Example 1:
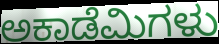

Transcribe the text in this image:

ಅಕಾಡೆಮಿಗಳು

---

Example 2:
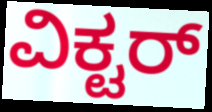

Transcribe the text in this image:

ವಿಕ್ಟರ್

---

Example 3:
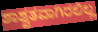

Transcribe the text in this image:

ಶಾಶ್ವತವಾಗಿರಲಿಲ್ಲ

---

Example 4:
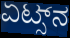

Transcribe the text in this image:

ಏಟ್ಸ್‌ನ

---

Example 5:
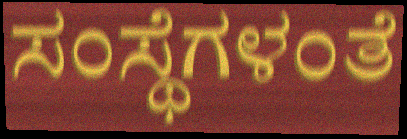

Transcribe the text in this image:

ಸಂಸ್ಥೆಗಳಂತೆ